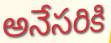
అనేసరికి